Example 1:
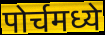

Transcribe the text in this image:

पोर्चमध्ये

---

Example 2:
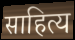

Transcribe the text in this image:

साहित्य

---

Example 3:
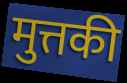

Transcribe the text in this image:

मुत्तकी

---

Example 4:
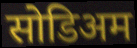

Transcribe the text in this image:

सोडिअम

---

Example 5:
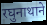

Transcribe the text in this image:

रघुनाथाने